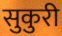
सुकुरी